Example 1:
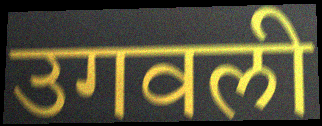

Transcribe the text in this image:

उगवली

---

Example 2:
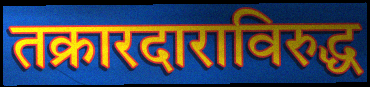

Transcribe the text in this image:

तक्रारदाराविरुद्ध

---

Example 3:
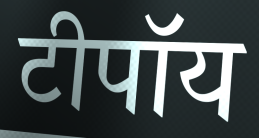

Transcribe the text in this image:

टीपॉय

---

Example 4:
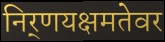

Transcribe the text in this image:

निर्णयक्षमतेवर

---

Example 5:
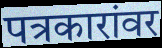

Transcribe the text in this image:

पत्रकारांवर